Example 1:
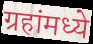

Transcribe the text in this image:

ग्रहांमध्ये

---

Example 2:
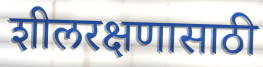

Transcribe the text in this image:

शीलरक्षणासाठी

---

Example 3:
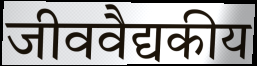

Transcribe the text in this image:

जीववैद्यकीय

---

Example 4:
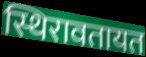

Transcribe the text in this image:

स्थिरावतायत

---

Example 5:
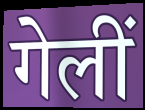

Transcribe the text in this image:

गेलीं